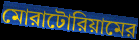
মোরাটোরিয়ামের